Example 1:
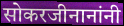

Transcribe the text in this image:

सोकरजीनानांनी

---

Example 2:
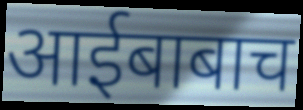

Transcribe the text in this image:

आईबाबाच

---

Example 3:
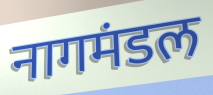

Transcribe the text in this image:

नागमंडल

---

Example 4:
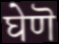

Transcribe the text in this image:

घेणॆ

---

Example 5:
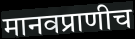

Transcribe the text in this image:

मानवप्राणीच